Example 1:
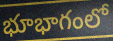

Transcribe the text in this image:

భూభాగంలో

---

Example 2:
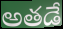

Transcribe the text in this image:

అతడే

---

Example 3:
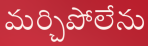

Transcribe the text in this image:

మర్చిపోలేను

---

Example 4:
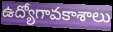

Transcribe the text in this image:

ఉద్యోగావకాశాలు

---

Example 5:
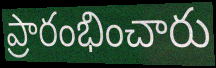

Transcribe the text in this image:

ప్రారంభించారు